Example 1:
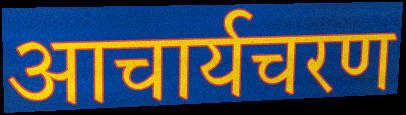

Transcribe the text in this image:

आचार्यचरण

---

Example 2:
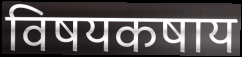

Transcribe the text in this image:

विषयकषाय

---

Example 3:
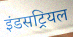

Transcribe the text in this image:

इंडसट्रियल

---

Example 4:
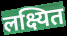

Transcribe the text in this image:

लक्ष्यित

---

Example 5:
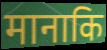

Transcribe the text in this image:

मानाकि